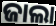
ଜାଲା